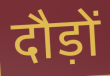
दौड़ों